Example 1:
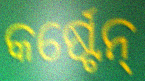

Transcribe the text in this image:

କର୍ଷ୍ଟେନ୍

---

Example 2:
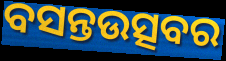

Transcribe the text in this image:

ବସନ୍ତଉତ୍ସବର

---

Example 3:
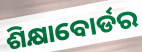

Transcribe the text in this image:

ଶିକ୍ଷାବୋର୍ଡର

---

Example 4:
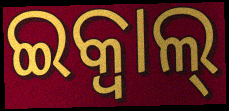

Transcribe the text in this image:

ଇକ୍ବାଲ୍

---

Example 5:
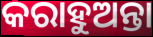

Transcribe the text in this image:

କରାହୁଅନ୍ତା